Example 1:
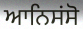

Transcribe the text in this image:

ਆਨਿਸਂਸੋ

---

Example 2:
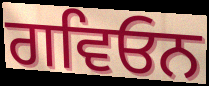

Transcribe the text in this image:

ਗਵਿਓਨ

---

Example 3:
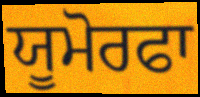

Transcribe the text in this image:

ਯੂਮੋਰਫਾ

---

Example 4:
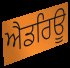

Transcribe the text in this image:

ਐਡਰਿਊ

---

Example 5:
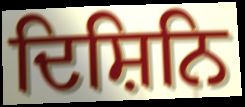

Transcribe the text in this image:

ਦਿਸ਼ਿਨਿ